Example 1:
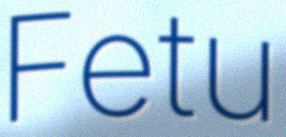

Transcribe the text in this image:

Fetu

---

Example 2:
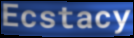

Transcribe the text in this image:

Ecstacy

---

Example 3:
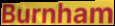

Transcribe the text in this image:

Burnham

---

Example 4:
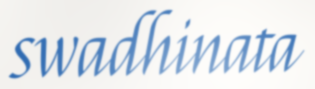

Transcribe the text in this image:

swadhinata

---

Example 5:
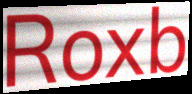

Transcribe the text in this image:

Roxb